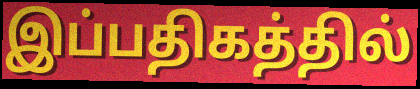
இப்பதிகத்தில்